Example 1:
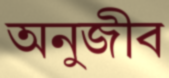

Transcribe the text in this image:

অনুজীব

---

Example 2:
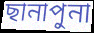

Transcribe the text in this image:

ছানাপুনা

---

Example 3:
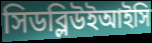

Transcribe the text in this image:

সিডব্লিউইআইসি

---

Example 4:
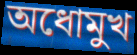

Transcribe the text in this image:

অধোমুখ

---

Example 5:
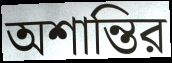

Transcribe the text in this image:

অশান্তির